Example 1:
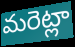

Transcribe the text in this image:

మరెట్లా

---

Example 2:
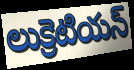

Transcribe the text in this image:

లుక్రెటియస్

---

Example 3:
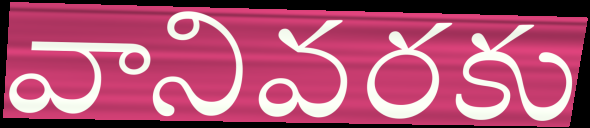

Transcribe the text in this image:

వానివరకు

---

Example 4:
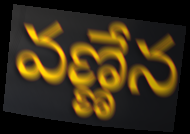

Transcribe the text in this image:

వణ్ణేన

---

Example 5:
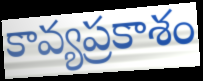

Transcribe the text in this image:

కావ్యప్రకాశం